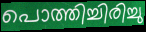
പൊത്തിച്ചിരിച്ചു